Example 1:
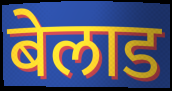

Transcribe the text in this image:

बेलाड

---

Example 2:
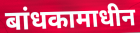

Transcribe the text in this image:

बांधकामाधीन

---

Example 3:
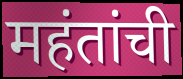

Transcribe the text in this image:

महंतांची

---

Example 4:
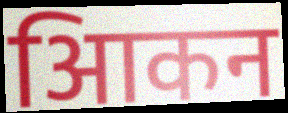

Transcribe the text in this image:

आिकन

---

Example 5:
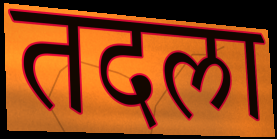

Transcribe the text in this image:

तदला